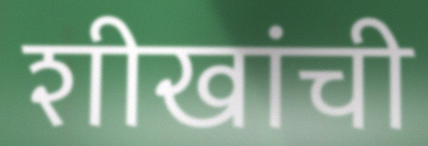
शीखांची